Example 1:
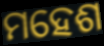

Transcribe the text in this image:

ମହେଶ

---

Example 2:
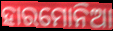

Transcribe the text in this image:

ହାରମୋନିଆ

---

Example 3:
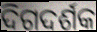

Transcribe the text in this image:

ଦିଗଦର୍ଶକ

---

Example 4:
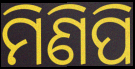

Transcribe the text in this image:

ମିଣିପି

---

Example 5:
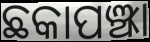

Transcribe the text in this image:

ଛକାପଞ୍ଝା